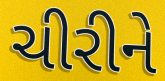
ચીરીને